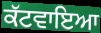
ਕੱਟਵਾਇਆ